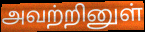
அவற்றினுள்